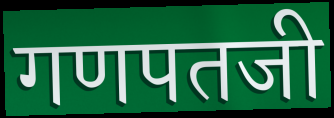
गणपतजी